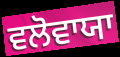
ਵਲੋਵਾਯਾ